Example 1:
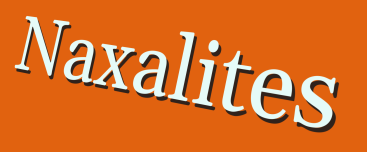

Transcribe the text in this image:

Naxalites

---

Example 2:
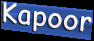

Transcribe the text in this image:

Kapoor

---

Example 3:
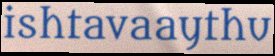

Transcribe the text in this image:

ishtavaaythu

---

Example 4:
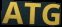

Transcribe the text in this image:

ATG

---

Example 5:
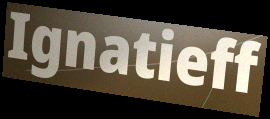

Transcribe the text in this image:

Ignatieff